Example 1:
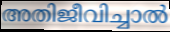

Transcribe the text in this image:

അതിജീവിച്ചാൽ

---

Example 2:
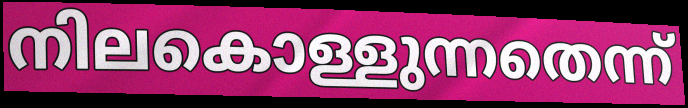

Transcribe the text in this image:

നിലകൊള്ളുന്നതെന്ന്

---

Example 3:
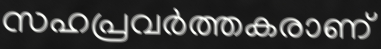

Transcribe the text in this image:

സഹപ്രവർത്തകരാണ്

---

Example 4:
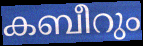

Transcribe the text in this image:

കബീറും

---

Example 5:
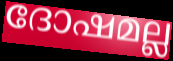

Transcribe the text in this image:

ദോഷമല്ല